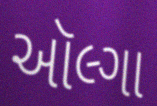
ઑલ્ગા